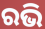
ରଭି